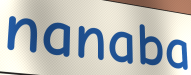
nanaba